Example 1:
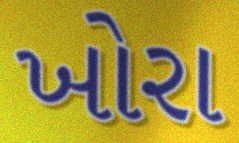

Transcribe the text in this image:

ખોરા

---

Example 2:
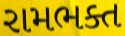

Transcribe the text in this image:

રામભક્ત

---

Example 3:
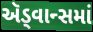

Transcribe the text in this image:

ઍડ્વાન્સમાં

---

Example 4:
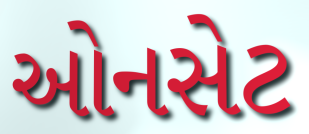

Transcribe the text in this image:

ઓનસેટ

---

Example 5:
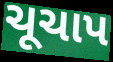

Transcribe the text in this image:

ચૂચાપ